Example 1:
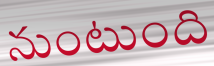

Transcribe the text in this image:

నుంటుంది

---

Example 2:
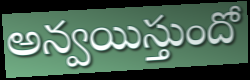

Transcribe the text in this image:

అన్వయిస్తుందో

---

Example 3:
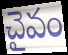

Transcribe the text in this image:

చైవం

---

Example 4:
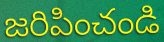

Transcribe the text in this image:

జరిపించండి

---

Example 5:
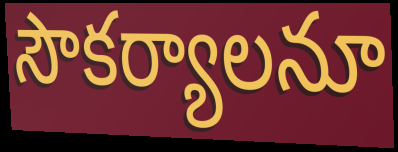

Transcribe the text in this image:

సౌకర్యాలనూ